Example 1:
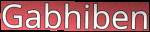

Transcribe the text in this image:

Gabhiben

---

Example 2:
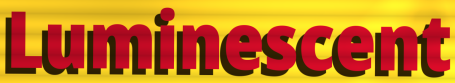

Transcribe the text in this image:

Luminescent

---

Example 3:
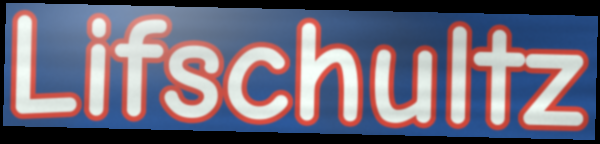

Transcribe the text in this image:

Lifschultz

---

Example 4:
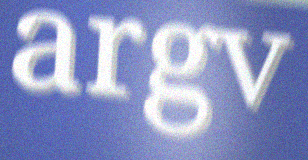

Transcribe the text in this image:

argv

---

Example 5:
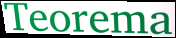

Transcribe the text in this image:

Teorema